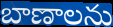
బాణాలను